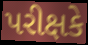
પરીક્ષકે